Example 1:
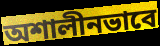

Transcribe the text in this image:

অশালীনভাবে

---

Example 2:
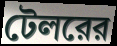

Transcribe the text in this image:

টেলরের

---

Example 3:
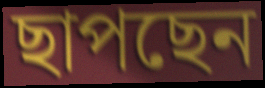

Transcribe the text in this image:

ছাপছেন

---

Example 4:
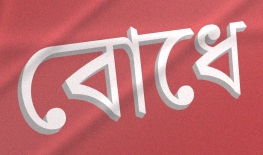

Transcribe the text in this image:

বোধে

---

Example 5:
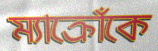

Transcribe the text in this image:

ম্যাক্রোঁকে